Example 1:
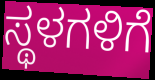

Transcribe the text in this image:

ಸ್ಥಳಗಳಿಗೆ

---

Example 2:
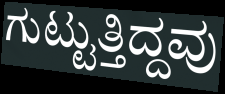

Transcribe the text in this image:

ಗುಟ್ಟುತ್ತಿದ್ದವು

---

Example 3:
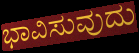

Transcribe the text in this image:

ಭಾವಿಸುವುದು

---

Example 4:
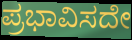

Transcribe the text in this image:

ಪ್ರಭಾವಿಸದೇ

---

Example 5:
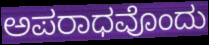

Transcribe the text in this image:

ಅಪರಾಧವೊಂದು